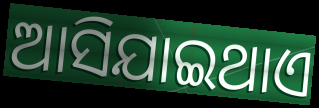
ଆସିଯାଇଥାଏ